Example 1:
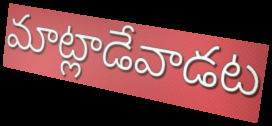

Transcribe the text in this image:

మాట్లాడేవాడట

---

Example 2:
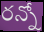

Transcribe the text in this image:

రన్నో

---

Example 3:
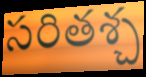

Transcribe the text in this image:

సరితశ్చ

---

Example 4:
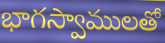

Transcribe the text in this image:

భాగస్వాములతో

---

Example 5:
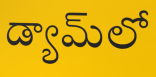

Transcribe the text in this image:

డ్యామ్‌లో